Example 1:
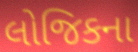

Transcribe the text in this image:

લોજિકના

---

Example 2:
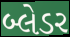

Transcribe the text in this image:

બ્લેડર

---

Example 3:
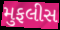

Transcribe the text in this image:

મુફલીસ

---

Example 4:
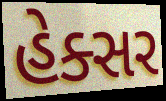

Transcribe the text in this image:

હેક્સર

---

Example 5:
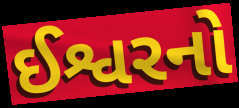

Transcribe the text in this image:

ઈશ્વરનો